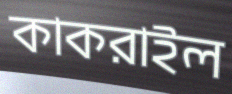
কাকরাইল